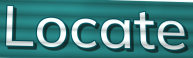
Locate